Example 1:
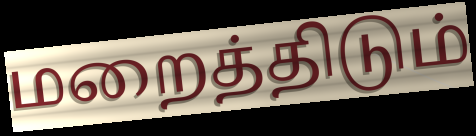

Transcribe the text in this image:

மறைத்திடும்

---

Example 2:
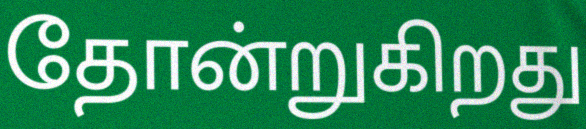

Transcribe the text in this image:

தோன்றுகிறது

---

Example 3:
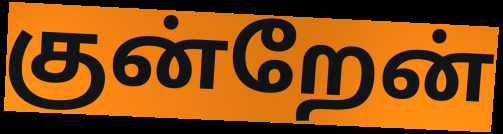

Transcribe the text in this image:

குன்றேன்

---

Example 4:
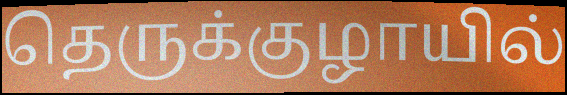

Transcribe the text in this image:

தெருக்குழாயில்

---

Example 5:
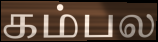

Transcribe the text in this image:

கம்பல